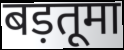
बड़तूमा